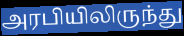
அரபியிலிருந்து